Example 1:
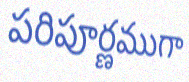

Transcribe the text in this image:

పరిపూర్ణముగా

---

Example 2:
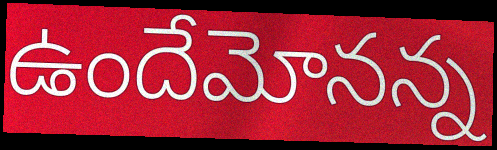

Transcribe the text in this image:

ఉందేమోనన్న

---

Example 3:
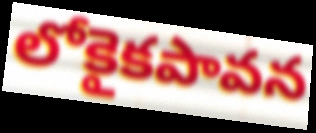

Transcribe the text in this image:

లోకైకపావన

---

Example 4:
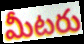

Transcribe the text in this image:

మీటరు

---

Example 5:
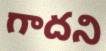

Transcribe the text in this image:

గాదని